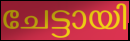
ചേട്ടായി